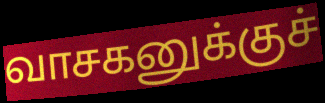
வாசகனுக்குச்